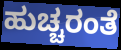
ಹುಚ್ಚರಂತೆ